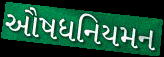
ઔષધનિયમન